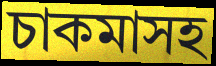
চাকমাসহ